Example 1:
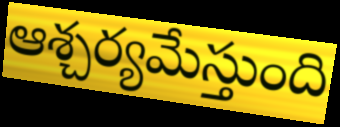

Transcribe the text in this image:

ఆశ్చర్యమేస్తుంది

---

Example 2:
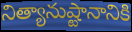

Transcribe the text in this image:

నిత్యానుష్టానానికి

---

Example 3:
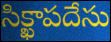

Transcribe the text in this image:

సిక్ఖాపదేసు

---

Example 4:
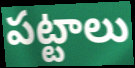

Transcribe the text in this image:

పట్టాలు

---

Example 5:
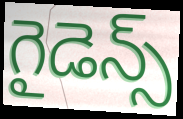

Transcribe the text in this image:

గైడెన్స్